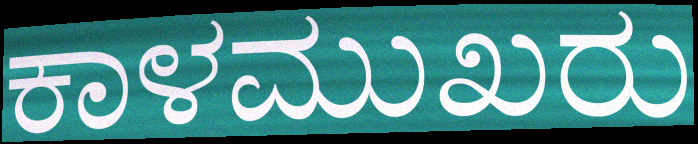
ಕಾಳಮುಖರು